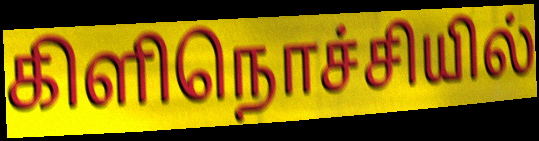
கிளிநொச்சியில்